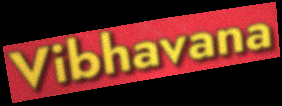
Vibhavana